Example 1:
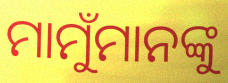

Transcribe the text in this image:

ମାମୁଁମାନଙ୍କୁ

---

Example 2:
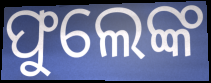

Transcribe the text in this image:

ଫୁଲେଙ୍କ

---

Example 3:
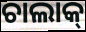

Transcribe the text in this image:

ଚାଲାକ୍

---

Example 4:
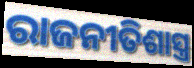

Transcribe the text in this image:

ରାଜନୀତିଶାସ୍ତ୍ର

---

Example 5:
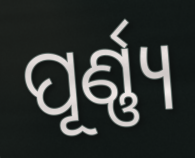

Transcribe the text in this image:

ପୂର୍ଣ୍ଣ୍ୟ